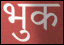
भुक